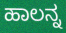
ಹಾಲನ್ನ